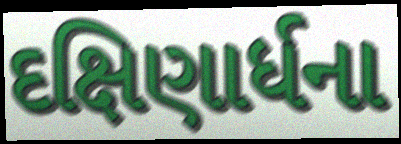
દક્ષિણાર્ધના